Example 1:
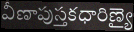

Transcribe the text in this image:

వీణాపుస్తకధారిణ్యై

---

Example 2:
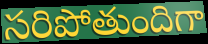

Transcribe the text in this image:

సరిపోతుందిగా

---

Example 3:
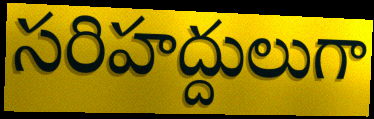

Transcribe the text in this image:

సరిహద్దులుగా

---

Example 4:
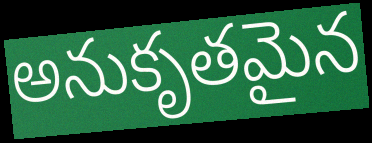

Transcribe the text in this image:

అనుకృతమైన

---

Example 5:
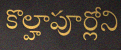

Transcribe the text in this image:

కొల్హాపూర్లోని